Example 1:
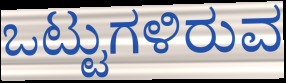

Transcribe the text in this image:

ಒಟ್ಟುಗಳಿರುವ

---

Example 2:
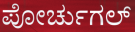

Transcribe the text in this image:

ಪೋರ್ಚುಗಲ್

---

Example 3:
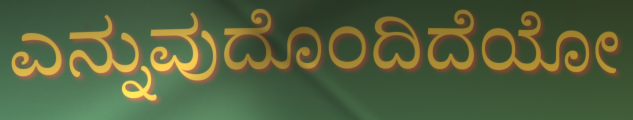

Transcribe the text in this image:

ಎನ್ನುವುದೊಂದಿದೆಯೋ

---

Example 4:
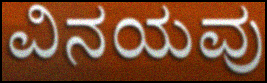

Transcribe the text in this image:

ವಿನಯವು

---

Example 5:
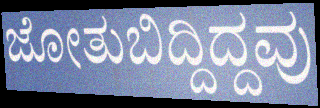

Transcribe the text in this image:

ಜೋತುಬಿದ್ದಿದ್ದವು